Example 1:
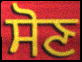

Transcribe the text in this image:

ਸੋਣ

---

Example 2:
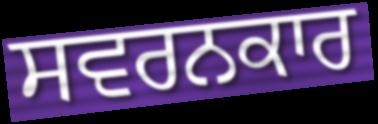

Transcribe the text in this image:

ਸਵਰਨਕਾਰ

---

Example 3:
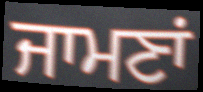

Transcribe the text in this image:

ਜਾਮਣਾਂ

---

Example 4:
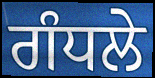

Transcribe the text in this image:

ਗੰਧਲੇ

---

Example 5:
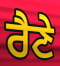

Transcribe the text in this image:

ਰੈਣੇ